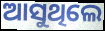
ଆସୁଥିଲେ